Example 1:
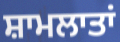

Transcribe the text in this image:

ਸ਼ਾਮਲਾਤਾਂ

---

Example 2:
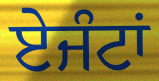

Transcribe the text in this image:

ਏਜੰਟਾਂ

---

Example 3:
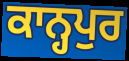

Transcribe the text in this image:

ਕਾਨ੍ਹਪੁਰ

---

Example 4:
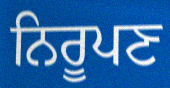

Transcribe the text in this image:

ਨਿਰੂਪਣ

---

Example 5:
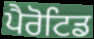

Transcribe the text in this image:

ਪੈਰੋਟਿਡ